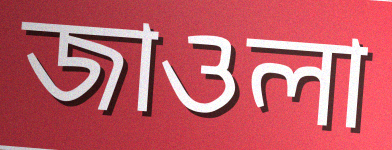
জাওলা